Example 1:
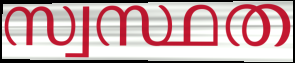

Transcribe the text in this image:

സ്വസ്ഥത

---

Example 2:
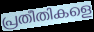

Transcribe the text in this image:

പ്രതീതികളെ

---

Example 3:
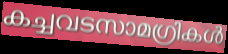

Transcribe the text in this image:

കച്ചവടസാമഗ്രികൾ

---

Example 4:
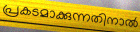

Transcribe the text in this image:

പ്രകടമാക്കുന്നതിനാൽ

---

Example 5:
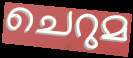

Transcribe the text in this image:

ചെറുമ